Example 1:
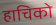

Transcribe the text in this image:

हाचिको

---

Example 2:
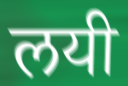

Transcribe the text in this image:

लयी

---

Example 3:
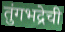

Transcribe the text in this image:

तुंगभद्रेची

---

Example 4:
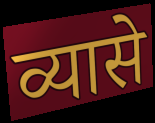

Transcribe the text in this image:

व्यासे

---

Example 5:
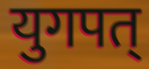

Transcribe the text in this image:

युगपत्